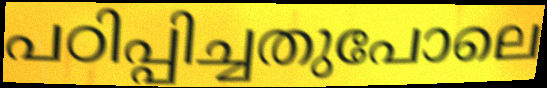
പഠിപ്പിച്ചതുപോലെ